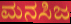
ಮನಸಿಜ